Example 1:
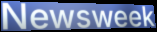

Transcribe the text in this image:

Newsweek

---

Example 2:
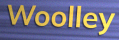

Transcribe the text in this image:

Woolley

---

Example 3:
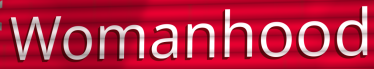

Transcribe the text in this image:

Womanhood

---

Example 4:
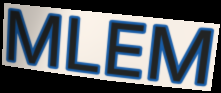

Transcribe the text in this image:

MLEM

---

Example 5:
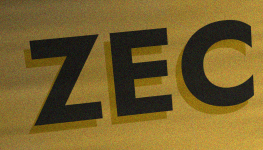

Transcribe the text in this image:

ZEC